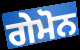
ਗੇਮੋਨ